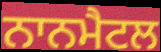
ਨਾਨਮੈਟਲ